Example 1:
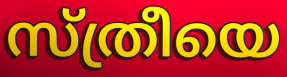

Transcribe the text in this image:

സ്ത്രീയെ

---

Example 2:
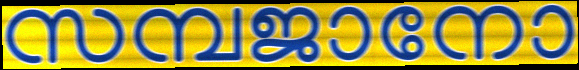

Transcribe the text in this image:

സമ്പജാനോ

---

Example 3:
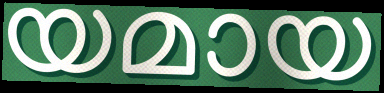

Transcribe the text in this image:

യമായ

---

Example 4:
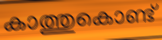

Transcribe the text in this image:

കാത്തുകൊണ്ട്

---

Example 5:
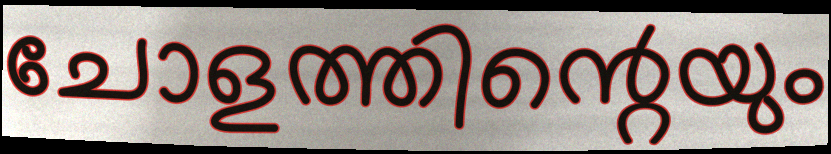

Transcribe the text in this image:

ചോളത്തിന്റെയും